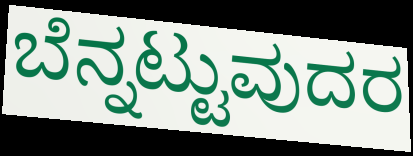
ಬೆನ್ನಟ್ಟುವುದರ